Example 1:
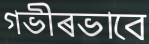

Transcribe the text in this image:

গভীৰভাবে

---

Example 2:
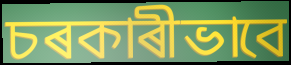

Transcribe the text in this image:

চৰকাৰীভাবে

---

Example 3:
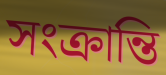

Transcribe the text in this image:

সংক্ৰান্তি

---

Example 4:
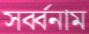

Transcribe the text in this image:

সৰ্ব্বনাম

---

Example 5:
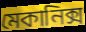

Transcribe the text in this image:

মেকানিক্স